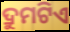
ଦ୍ରୁମଟିଏ